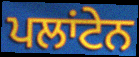
ਪਲਾਂਟੇਨ